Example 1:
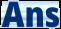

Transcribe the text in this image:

Ans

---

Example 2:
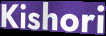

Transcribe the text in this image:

Kishori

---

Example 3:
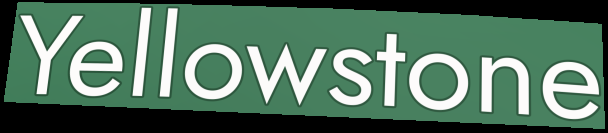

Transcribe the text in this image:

Yellowstone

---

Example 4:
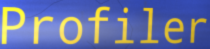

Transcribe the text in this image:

Profiler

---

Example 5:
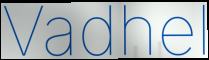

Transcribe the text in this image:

Vadhel